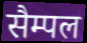
सैम्पल